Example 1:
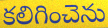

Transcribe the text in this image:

కలిగించెను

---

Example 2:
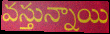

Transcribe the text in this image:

వస్తున్నాయి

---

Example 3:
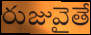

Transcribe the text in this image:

రుజువైతే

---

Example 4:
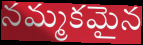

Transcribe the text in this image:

నమ్మకమైన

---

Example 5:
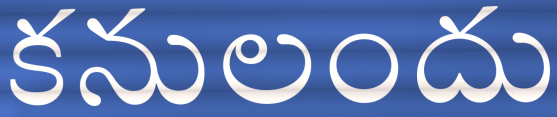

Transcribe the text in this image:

కనులందు